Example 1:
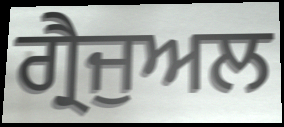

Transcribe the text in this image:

ਗ੍ਰੈਜੁਅਲ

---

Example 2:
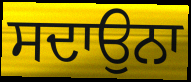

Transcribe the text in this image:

ਸਦਾਉਨਾ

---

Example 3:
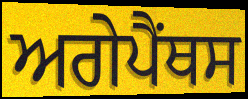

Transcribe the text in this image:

ਅਗੇਪੈਂਥਸ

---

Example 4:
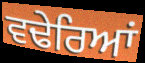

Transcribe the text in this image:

ਵਢੇਰਿਆਂ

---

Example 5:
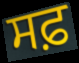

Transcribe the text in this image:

ਸਫ਼